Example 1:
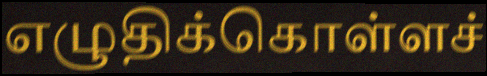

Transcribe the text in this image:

எழுதிக்கொள்ளச்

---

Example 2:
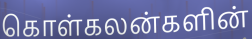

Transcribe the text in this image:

கொள்கலன்களின்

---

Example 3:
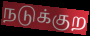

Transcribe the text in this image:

நடுக்குற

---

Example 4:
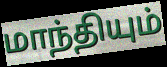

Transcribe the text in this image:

மாந்தியும்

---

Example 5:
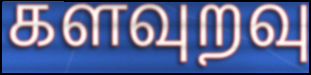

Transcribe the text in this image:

களவுறவு